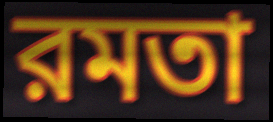
রমতা